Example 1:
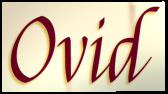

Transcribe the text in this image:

Ovid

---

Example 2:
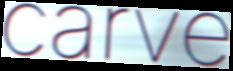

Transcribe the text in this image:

carve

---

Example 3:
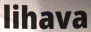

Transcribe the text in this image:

lihava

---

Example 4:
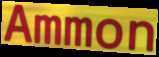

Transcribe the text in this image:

Ammon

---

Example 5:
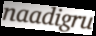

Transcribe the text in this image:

naadigru